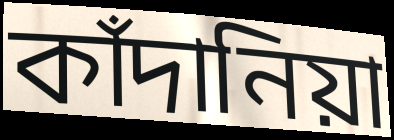
কাঁদানিয়া